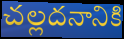
చల్లదనానికి